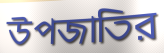
উপজাতির